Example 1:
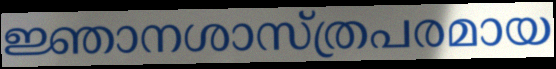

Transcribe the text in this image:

ജ്ഞാനശാസ്ത്രപരമായ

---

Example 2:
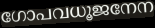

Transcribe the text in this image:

ഗോപവധൂജനേന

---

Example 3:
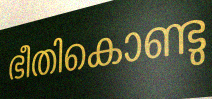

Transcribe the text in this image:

ഭീതികൊണ്ടു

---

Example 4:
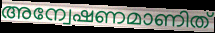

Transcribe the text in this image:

അന്വേഷണമാണിത്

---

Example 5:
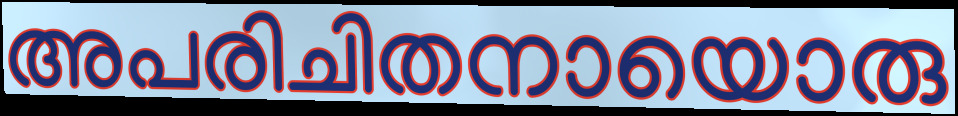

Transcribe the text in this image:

അപരിചിതനായൊരു